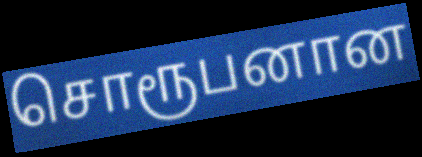
சொரூபனான